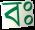
বঃ